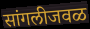
सांगलीजवळ